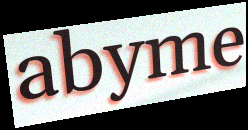
abyme